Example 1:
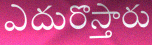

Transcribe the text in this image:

ఎదురొస్తారు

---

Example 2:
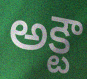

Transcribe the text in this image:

అక్టౌ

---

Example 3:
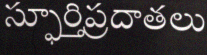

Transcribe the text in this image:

స్ఫూర్తిప్రదాతలు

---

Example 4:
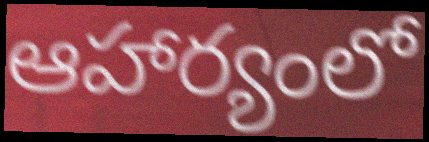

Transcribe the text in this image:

ఆహార్యంలో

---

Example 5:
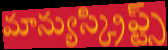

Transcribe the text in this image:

మాన్యుస్క్రిప్ట్స్